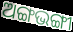
ଅଙ୍ଗଭଙ୍ଗୀ